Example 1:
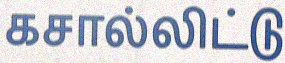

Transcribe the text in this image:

கசால்லிட்டு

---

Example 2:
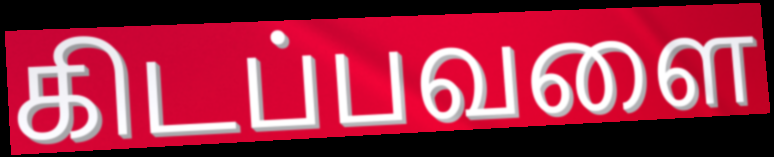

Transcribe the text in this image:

கிடப்பவளை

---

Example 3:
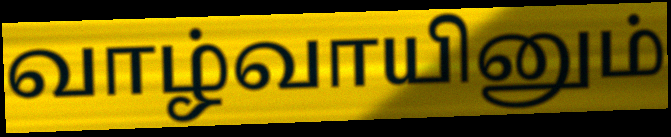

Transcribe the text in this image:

வாழ்வாயினும்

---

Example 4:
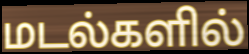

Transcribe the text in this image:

மடல்களில்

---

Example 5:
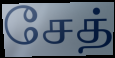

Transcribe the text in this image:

சேத்